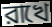
রাখে